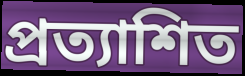
প্ৰত্যাশিত